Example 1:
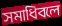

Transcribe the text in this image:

সমাধিবলে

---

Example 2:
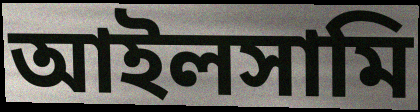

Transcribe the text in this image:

আইলসামি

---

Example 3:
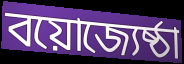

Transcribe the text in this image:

বয়োজ্যেষ্ঠা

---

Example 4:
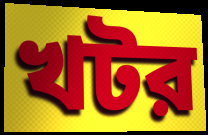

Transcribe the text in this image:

খটর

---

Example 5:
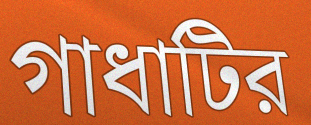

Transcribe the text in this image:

গাধাটির